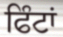
ਫਿੰਟਾਂ